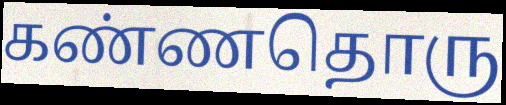
கண்ணதொரு